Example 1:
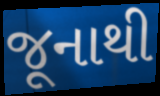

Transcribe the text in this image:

જૂનાથી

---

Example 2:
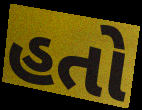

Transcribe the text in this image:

હતો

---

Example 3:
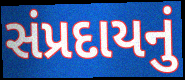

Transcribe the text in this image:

સંપ્રદાયનું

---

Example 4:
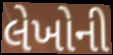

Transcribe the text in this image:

લેખોની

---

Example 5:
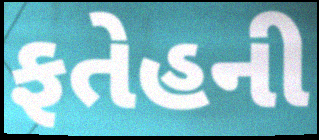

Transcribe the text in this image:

ફતેહની